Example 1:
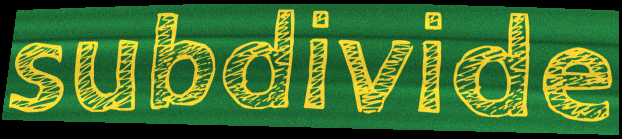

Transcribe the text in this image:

subdivide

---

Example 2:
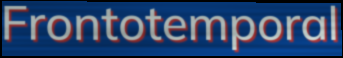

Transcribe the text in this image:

Frontotemporal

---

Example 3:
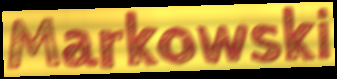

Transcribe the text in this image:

Markowski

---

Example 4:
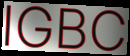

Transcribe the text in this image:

IGBC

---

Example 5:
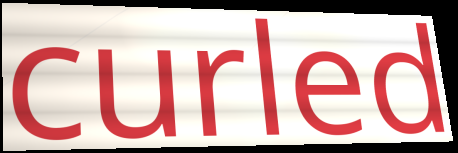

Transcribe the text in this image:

curled